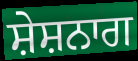
ਸ਼ੇਸ਼ਨਾਗ